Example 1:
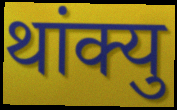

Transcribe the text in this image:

थांक्यु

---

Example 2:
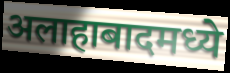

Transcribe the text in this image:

अलाहाबादमध्ये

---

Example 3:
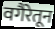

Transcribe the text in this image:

वगैरेतून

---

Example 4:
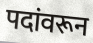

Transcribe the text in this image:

पदांवरून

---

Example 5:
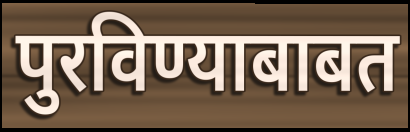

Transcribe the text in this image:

पुरविण्याबाबत